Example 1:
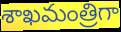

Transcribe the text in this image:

శాఖమంత్రిగా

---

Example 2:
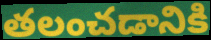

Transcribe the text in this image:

తలంచడానికి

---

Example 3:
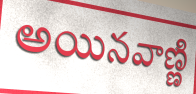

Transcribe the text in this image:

అయినవాణ్ణి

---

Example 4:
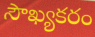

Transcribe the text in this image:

సౌఖ్యకరం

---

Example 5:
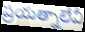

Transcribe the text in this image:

ప్రయత్నాలేవీ